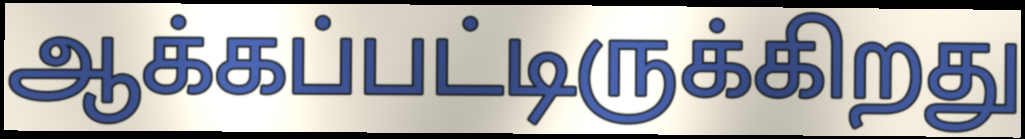
ஆக்கப்பட்டிருக்கிறது